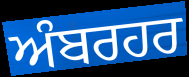
ਅੰਬਰਹਰ